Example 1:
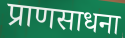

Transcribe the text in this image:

प्राणसाधना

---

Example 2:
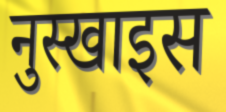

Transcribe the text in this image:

नुस्खाइस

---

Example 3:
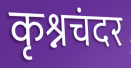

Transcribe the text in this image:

कृश्नचंदर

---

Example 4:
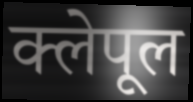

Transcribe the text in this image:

क्लेपूल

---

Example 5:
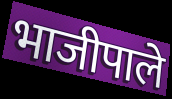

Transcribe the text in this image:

भाजीपाले